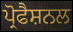
ਪ੍ਰੋਫੈਸ਼ਨਲ